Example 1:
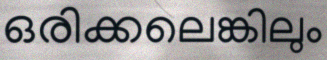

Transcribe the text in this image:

ഒരിക്കലെങ്കിലും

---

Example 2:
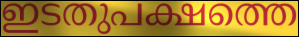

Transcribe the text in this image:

ഇടതുപക്ഷത്തെ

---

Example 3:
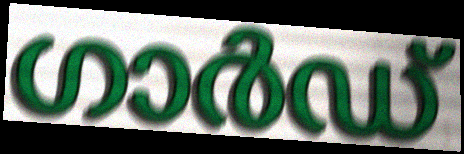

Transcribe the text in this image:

ഗാർഡ്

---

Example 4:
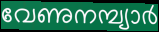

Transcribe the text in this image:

വേണുനമ്പ്യാർ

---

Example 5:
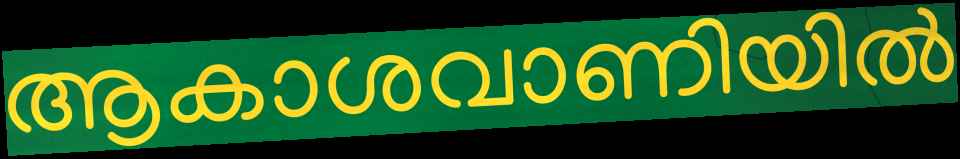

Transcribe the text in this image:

ആകാശവാണിയിൽ